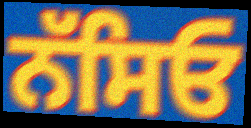
ਨੱਸਿਓ